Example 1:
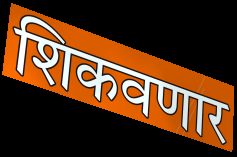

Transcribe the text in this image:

शिकवणार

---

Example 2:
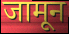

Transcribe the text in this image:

जामून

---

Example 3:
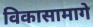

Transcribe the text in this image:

विकासामागे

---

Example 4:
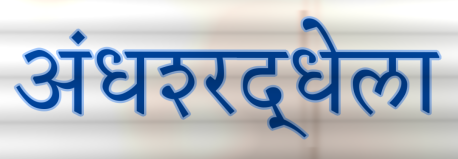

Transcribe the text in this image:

अंधश्रद्धेला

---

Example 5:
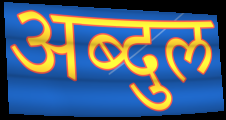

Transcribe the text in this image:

अब्दुल